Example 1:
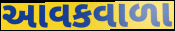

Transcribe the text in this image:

આવકવાળા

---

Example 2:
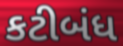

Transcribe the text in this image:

કટીબંધ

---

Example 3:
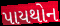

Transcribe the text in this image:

પાયથોન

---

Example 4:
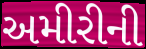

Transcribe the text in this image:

અમીરીની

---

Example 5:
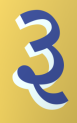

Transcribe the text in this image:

રૂ